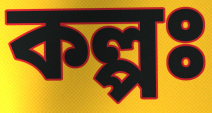
কল্পঃ